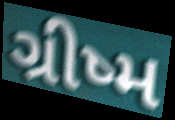
ગ્રીષ્મ